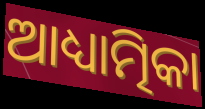
ଆଧ୍ୟାତ୍ମିକା